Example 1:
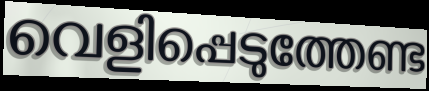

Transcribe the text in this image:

വെളിപ്പെടുത്തേണ്ട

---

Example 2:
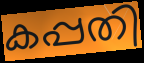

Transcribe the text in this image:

കപ്പതി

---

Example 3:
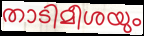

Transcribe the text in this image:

താടിമീശയും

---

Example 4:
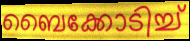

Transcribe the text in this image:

ബൈക്കോടിച്ച്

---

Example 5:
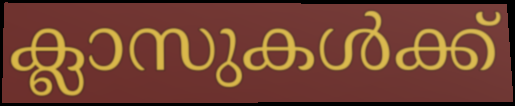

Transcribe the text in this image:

ക്ലാസുകൾക്ക്